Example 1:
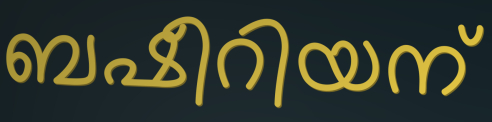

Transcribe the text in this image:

ബഷീറിയന്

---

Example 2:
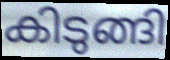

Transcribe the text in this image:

കിടുങ്ങി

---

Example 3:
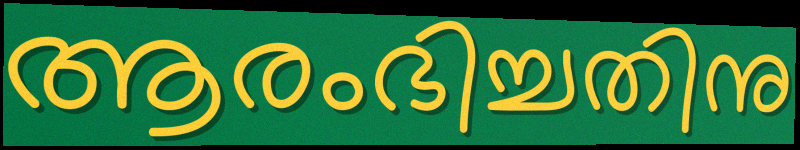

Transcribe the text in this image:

ആരംഭിച്ചതിനു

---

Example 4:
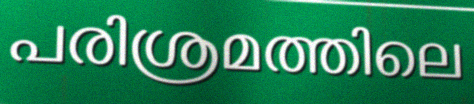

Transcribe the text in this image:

പരിശ്രമത്തിലെ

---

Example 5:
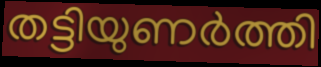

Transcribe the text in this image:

തട്ടിയുണർത്തി